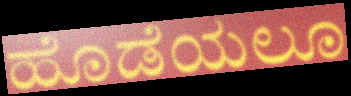
ಹೊಡೆಯಲೂ